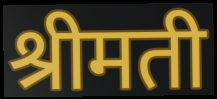
श्रीमती